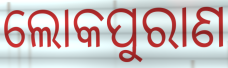
ଲୋକପୁରାଣ